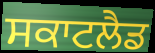
ਸਕਾਟਲੈਡ